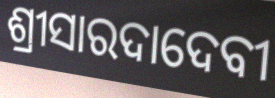
ଶ୍ରୀସାରଦାଦେବୀ